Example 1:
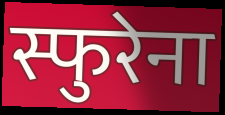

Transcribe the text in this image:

स्फुरेना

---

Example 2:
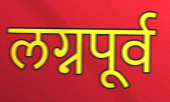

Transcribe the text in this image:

लग्नपूर्व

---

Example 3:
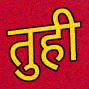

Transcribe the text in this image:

तुही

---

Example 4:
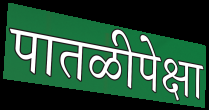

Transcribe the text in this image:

पातळीपेक्षा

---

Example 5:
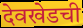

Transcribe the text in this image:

देवखेडची